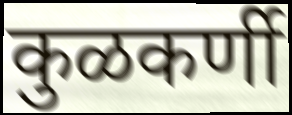
कुळकर्णी